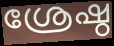
ശ്രേഷ്ഠ